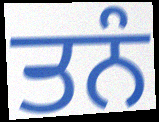
ਤਨੰ